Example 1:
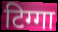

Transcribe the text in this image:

टिग्गा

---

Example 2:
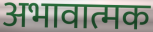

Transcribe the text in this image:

अभावात्मक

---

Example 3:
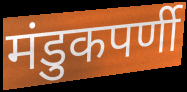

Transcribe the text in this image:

मंडुकपर्णी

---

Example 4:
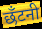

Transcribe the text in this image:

छँटनी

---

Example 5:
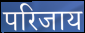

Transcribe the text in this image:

परिजाय